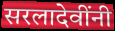
सरलादेवींनी